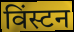
विंस्टन